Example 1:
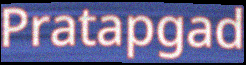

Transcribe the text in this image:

Pratapgad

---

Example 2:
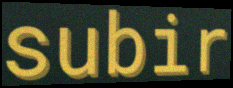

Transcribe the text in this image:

subir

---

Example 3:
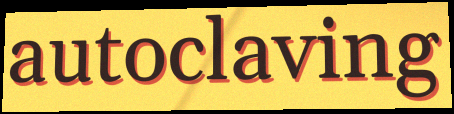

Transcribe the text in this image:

autoclaving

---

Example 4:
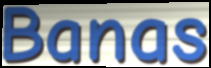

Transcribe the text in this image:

Banas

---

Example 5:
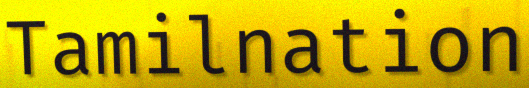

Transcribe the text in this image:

Tamilnation